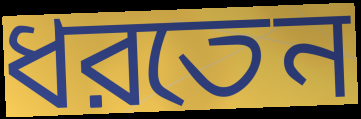
ধরতেন